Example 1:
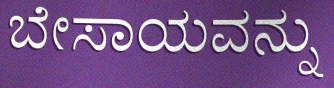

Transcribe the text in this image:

ಬೇಸಾಯವನ್ನು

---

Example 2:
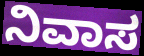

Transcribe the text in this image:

ನಿವಾಸ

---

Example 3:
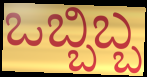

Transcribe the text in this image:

ಒಬ್ಬಿಬ್ಬ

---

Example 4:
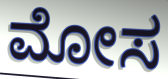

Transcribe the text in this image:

ಮೋಸ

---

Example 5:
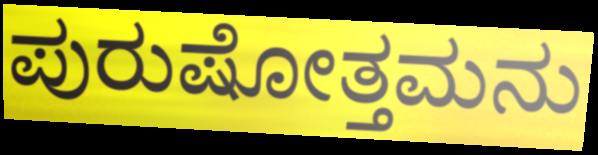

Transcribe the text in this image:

ಪುರುಷೋತ್ತಮನು